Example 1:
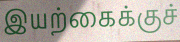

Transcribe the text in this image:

இயற்கைக்குச்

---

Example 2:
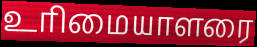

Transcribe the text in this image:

உரிமையாளரை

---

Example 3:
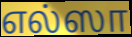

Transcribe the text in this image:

எல்ஸா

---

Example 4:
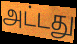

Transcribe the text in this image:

அட்டது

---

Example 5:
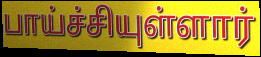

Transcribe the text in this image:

பாய்ச்சியுள்ளார்